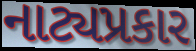
નાટ્યપ્રકાર